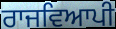
ਰਾਜਵਿਆਪੀ